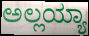
ಅಲ್ಲಯ್ಯಾ